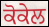
ਕੋਕੇਲ